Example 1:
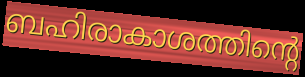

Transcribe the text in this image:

ബഹിരാകാശത്തിന്റെ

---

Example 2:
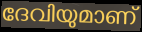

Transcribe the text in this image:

ദേവിയുമാണ്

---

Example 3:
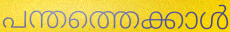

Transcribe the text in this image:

പന്തത്തെക്കാൾ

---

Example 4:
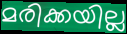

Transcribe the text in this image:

മരിക്കയില്ല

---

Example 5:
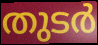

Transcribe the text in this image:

തുടർ